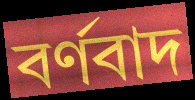
বৰ্ণবাদ